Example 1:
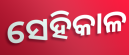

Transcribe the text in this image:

ସେହିକାଳ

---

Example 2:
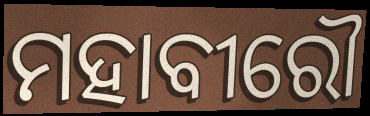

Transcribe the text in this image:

ମହାବୀରୌ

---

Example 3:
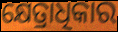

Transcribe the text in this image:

କ୍ଷେତ୍ରାଧିକାର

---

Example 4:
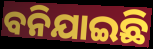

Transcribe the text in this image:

ବନିଯାଇଛି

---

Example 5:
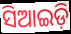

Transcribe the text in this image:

ସିଆଇଡ଼ି